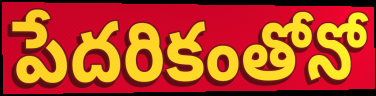
పేదరికంతోనో